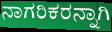
ನಾಗರಿಕರನ್ನಾಗಿ